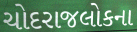
ચોદરાજલોકના